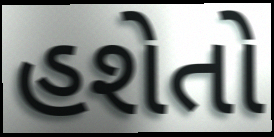
હશેતો